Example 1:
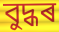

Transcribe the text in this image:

বুদ্ধৰ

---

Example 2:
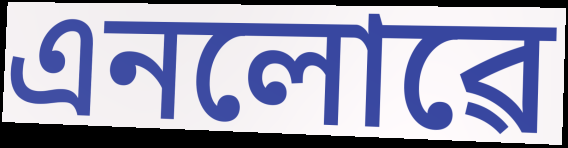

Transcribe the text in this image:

এনলোৱে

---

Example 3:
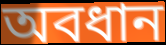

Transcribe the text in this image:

অবধান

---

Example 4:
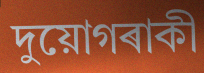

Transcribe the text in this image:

দুয়োগৰাকী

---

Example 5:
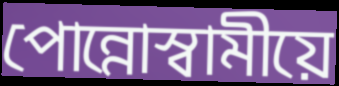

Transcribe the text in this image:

পোন্নোস্বামীয়ে